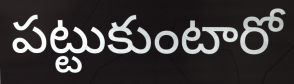
పట్టుకుంటారో